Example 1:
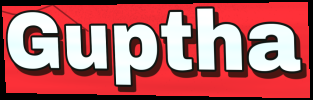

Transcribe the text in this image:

Guptha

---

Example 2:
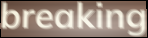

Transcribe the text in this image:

breaking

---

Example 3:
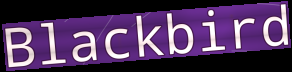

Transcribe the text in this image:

Blackbird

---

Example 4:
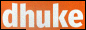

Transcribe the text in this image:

dhuke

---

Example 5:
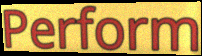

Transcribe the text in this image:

Perform